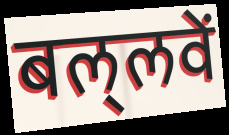
बल्लवें